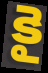
కై